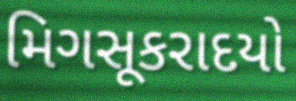
મિગસૂકરાદયો